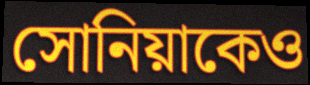
সোনিয়াকেও